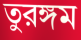
তুরঙ্গম